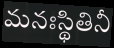
మనఃస్థితినీ